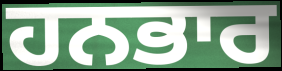
ਹਨਭਾਰ